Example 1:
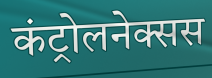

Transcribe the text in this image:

कंट्रोलनेक्सस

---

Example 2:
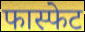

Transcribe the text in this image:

फास्फेट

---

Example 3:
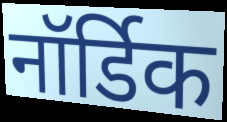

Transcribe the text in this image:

नॉर्डिक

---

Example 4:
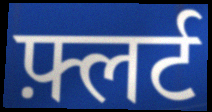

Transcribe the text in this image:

फ़्लर्ट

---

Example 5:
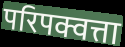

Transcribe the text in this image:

परिपक्वत्ता